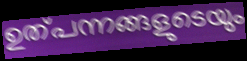
ഉത്പന്നങ്ങളുടെയും